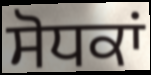
ਸੋਧਕਾਂ